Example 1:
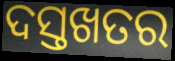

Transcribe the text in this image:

ଦସ୍ତଖତର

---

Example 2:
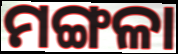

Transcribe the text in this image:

ମଙ୍ଗଳା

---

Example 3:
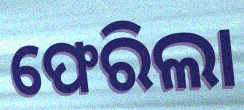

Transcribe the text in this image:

ଫେରିଲା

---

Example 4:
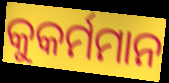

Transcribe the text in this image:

କୁକର୍ମମାନ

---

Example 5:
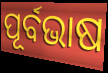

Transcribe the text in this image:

ପୂର୍ବଭାଷ